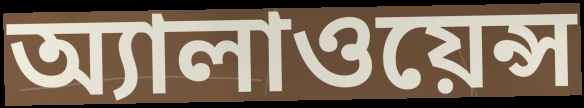
অ্যালাওয়েন্স